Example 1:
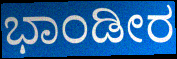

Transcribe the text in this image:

ಭಾಂಡೀರ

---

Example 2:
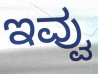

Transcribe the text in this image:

ಇವ್ವು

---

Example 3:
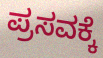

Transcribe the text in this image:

ಪ್ರಸವಕ್ಕೆ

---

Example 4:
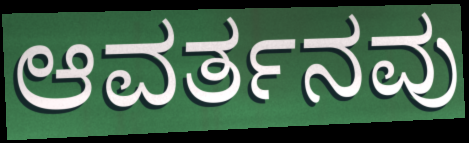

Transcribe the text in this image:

ಆವರ್ತನವು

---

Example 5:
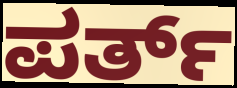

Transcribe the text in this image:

ಪರ್ತ್